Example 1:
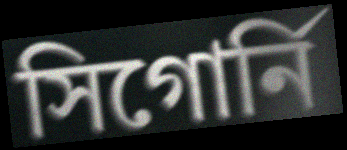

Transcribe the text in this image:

সিগোর্নি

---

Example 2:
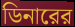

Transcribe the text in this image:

ডিনারের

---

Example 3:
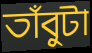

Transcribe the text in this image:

তাঁবুটা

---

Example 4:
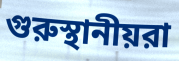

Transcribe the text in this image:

গুরুস্থানীয়রা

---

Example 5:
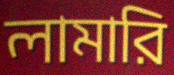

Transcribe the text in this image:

লামারি